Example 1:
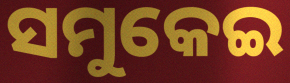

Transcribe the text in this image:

ସମୁକେଇ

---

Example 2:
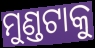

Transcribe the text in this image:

ମୁଣ୍ଡଟାକୁ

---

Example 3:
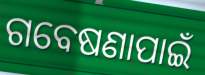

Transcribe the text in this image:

ଗବେଷଣାପାଇଁ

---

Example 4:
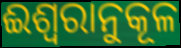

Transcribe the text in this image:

ଈଶ୍ଵରାନୁକୂଳ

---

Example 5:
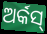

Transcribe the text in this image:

ଅର୍କସ୍